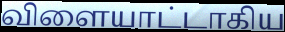
விளையாட்டாகிய